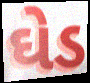
ઘેડ